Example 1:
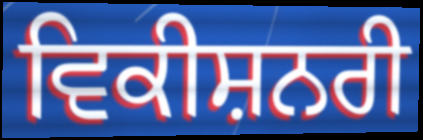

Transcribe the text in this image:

ਵਿਕੀਸ਼ਨਰੀ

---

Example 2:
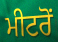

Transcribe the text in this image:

ਮੀਟਰੋਂ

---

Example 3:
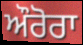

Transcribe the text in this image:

ਔਰੋਰਾ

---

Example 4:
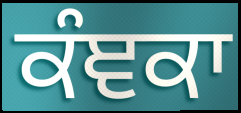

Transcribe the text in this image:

ਕੰਞਕਾ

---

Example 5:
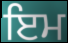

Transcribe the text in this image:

ਇਮ